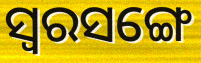
ସ୍ୱରସଙ୍ଗେ